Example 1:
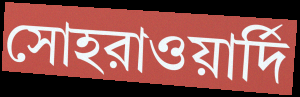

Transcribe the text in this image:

সোহরাওয়ার্দি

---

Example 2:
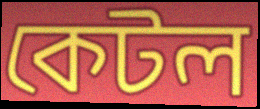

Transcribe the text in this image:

কেটল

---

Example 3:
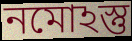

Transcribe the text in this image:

নমোঽস্তু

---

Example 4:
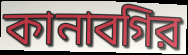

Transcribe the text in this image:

কানাবগির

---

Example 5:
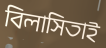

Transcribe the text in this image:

বিলাসিতাই